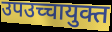
उपउच्चायुक्त